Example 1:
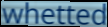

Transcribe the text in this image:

whetted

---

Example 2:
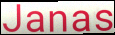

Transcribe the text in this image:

Janas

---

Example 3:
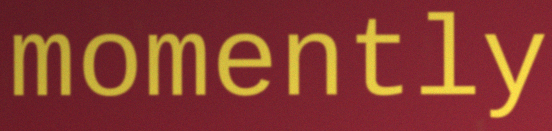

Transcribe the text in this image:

momently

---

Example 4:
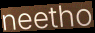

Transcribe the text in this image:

neetho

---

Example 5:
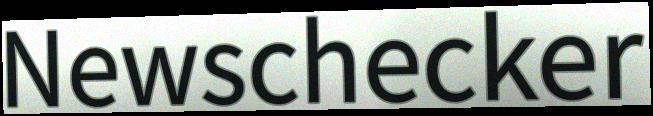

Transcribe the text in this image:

Newschecker